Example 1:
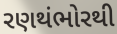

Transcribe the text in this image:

રણથંભોરથી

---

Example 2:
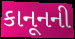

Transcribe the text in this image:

કાનૂનની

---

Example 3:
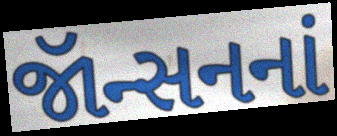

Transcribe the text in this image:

જૉન્સનનાં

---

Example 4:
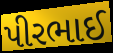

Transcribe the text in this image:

પીરભાઈ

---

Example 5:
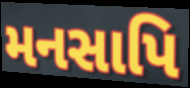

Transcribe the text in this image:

મનસાપિ